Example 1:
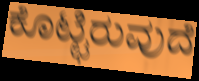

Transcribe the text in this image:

ಕೊಟ್ಟಿರುವುದೆ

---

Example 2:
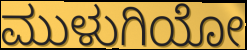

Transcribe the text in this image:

ಮುಳುಗಿಯೋ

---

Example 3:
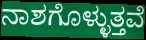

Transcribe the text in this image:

ನಾಶಗೊಳ್ಳುತ್ತವೆ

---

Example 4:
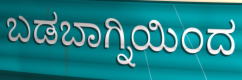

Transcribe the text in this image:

ಬಡಬಾಗ್ನಿಯಿಂದ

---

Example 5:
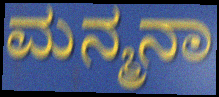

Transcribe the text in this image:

ಮನ್ಮನಾ